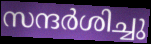
സന്ദർശിച്ചു